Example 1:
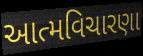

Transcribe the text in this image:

આત્મવિચારણા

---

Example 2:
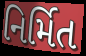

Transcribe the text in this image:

નિર્મિત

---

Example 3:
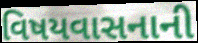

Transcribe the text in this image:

વિષયવાસનાની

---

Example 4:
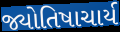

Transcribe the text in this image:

જ્યોતિષાચાર્ય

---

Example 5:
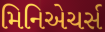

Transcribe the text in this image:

મિનિએચર્સ